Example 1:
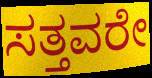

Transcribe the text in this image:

ಸತ್ತವರೇ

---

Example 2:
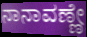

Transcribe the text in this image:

ನಾನಾವಣ್ಣೇ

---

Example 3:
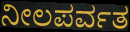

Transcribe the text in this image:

ನೀಲಪರ್ವತ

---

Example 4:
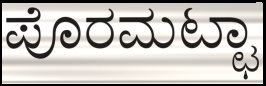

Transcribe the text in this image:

ಪೊರಮಟ್ಟಾ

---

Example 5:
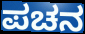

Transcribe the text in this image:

ಪಚನ